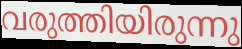
വരുത്തിയിരുന്നു